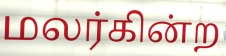
மலர்கின்ற